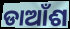
ଡାଆଁଶ